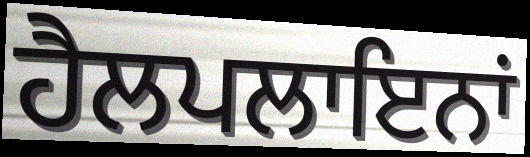
ਹੈਲਪਲਾਇਨਾਂ